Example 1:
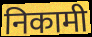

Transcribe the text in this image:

निकामी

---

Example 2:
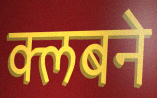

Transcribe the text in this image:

क्लबने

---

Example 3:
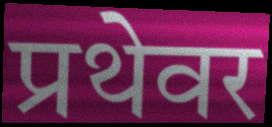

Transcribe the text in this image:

प्रथेवर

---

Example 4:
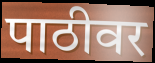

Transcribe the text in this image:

पाठीवर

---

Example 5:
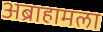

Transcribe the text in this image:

अब्राहामला